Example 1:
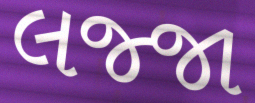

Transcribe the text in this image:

લજ્જા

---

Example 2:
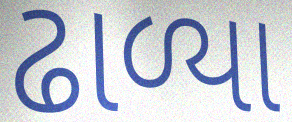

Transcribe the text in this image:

ઢાળ્યા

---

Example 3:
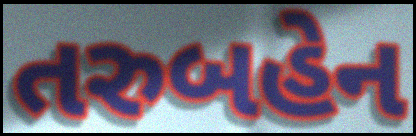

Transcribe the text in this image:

તરુબહેન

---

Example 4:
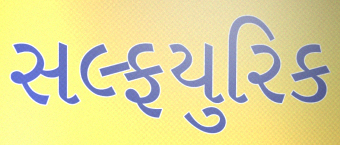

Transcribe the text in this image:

સલ્ફયુરિક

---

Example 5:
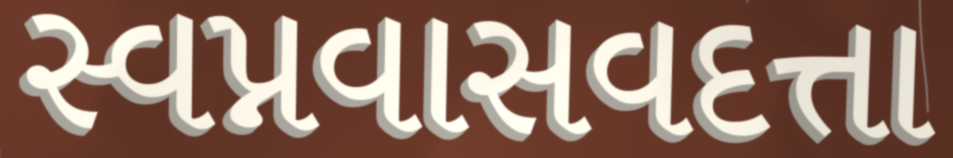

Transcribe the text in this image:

સ્વપ્નવાસવદત્તા